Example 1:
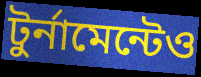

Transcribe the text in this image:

টুর্নামেন্টেও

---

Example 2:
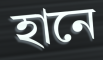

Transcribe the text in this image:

হানে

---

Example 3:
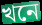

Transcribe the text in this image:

খনে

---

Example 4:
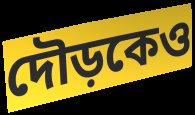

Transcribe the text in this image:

দৌড়কেও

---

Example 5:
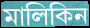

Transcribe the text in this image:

মালিকিন